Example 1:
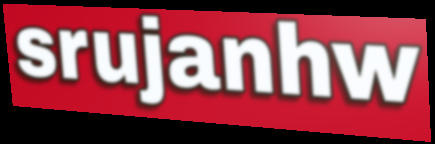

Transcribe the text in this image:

srujanhw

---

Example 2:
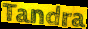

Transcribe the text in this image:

Tandra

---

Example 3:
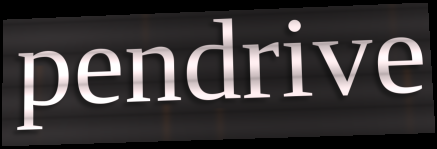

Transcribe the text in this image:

pendrive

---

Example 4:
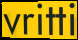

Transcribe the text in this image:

vritti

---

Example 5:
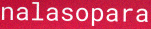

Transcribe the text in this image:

nalasopara